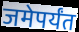
जमेपर्यंत